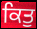
ਕਿਤੁ